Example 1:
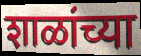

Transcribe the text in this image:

शाळांच्या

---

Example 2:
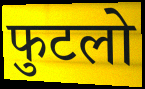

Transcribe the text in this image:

फुटलो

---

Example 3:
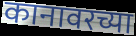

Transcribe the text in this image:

कानावरच्या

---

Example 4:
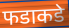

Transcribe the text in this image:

फडाकडे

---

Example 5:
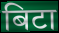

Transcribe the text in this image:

बिटा